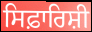
ਸਿਫ਼ਾਰਿਸ਼ੀ